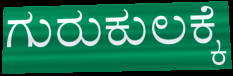
ಗುರುಕುಲಕ್ಕೆ